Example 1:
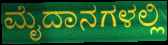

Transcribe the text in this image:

ಮೈದಾನಗಳಲ್ಲಿ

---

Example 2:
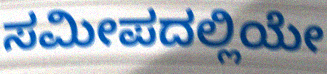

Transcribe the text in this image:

ಸಮೀಪದಲ್ಲಿಯೇ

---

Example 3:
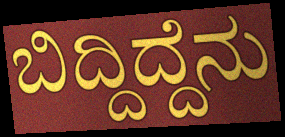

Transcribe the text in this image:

ಬಿದ್ದಿದ್ದೆನು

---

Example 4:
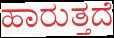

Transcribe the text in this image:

ಹಾರುತ್ತದೆ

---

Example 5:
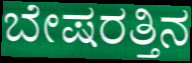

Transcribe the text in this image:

ಬೇಷರತ್ತಿನ